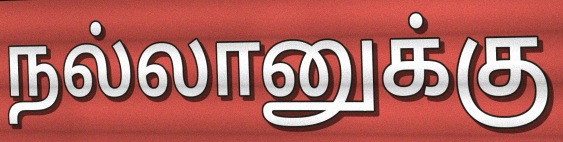
நல்லானுக்கு